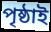
পৃষ্ঠাই